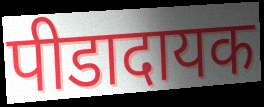
पीडादायक